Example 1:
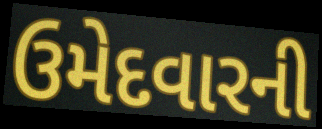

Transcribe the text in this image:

ઉમેદવારની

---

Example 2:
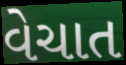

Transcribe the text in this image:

વેચાત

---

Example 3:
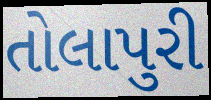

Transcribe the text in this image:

તોલાપુરી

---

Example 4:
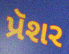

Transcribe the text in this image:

પ્રૅશર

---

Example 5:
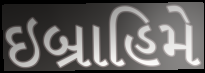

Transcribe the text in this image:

ઇબ્રાહિમે